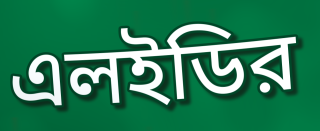
এলইডির